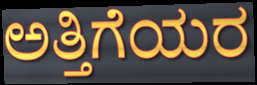
ಅತ್ತಿಗೆಯರ